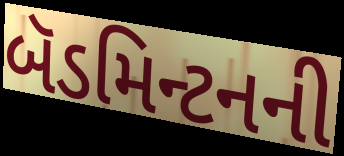
બૅડમિન્ટનની